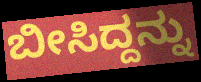
ಬೀಸಿದ್ದನ್ನು